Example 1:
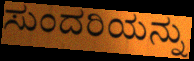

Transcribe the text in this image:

ಸುಂದರಿಯನ್ನು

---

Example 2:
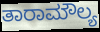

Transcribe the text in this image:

ತಾರಾಮೌಲ್ಯ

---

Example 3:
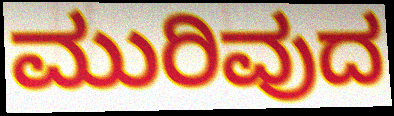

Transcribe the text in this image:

ಮುರಿವುದ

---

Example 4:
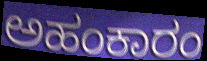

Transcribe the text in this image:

ಅಹಂಕಾರಂ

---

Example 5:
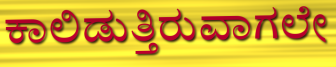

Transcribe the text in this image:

ಕಾಲಿಡುತ್ತಿರುವಾಗಲೇ